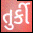
તુર્કી